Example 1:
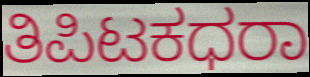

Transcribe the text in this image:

ತಿಪಿಟಕಧರಾ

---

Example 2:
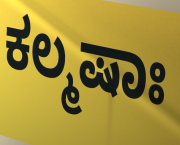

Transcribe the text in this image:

ಕಲ್ಮಷಾಃ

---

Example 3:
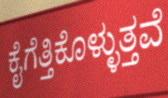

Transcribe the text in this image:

ಕೈಗೆತ್ತಿಕೊಳ್ಳುತ್ತವೆ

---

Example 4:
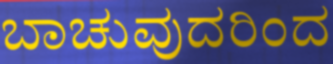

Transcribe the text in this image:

ಬಾಚುವುದರಿಂದ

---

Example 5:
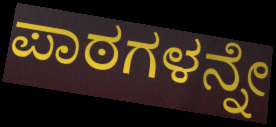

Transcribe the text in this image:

ಪಾಠಗಳನ್ನೇ